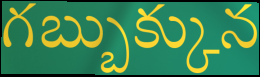
గబ్బుక్కున